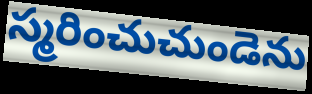
స్మరించుచుండెను